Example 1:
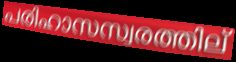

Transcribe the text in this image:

പരിഹാസസ്വരത്തില്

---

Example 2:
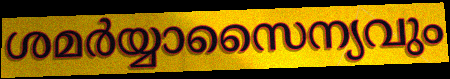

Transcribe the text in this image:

ശമർയ്യാസൈന്യവും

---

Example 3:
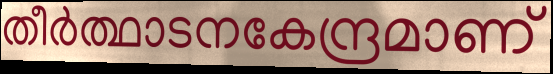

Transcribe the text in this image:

തീർത്ഥാടനകേന്ദ്രമാണ്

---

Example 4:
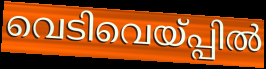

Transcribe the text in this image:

വെടിവെയ്പ്പിൽ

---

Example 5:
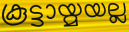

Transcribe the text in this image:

കൂട്ടായ്മയല്ല